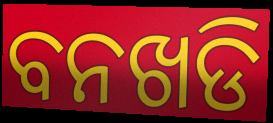
ବନଖଡି